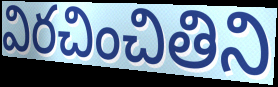
విరచించితిని